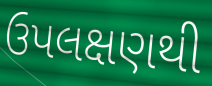
ઉપલક્ષણથી